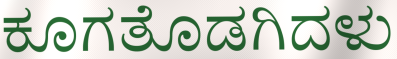
ಕೂಗತೊಡಗಿದಳು